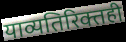
याव्यतिरिक्तही